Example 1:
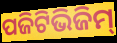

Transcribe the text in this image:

ପଜିଟିଭିଜିମ୍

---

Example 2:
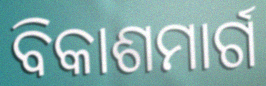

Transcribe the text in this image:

ବିକାଶମାର୍ଗ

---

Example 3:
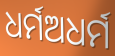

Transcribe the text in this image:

ଧର୍ମଅଧର୍ମ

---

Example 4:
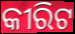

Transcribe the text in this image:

କୀରିଟ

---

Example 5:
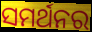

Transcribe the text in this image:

ସମର୍ଥନର